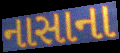
નાસાના